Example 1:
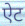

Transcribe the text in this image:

ऐट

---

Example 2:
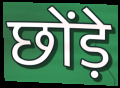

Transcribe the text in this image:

छोंड़े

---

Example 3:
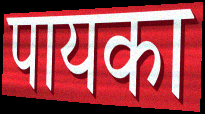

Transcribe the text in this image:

पायका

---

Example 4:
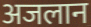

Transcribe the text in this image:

अजलान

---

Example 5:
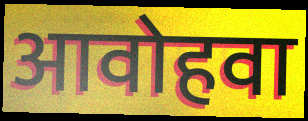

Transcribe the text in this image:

आवोहवा